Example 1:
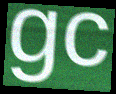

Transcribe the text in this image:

gc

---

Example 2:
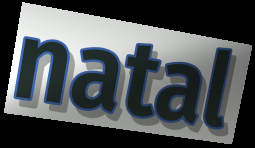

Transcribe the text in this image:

natal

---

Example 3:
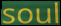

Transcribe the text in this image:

soul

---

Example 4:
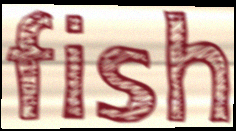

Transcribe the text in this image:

fish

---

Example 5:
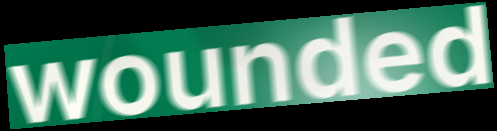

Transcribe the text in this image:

wounded